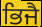
ਭਿਜੈ